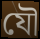
যৌ